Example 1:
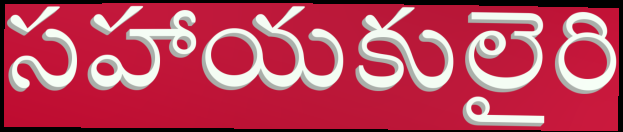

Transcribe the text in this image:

సహాయకులైరి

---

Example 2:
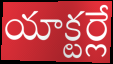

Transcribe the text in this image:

యాక్టర్లే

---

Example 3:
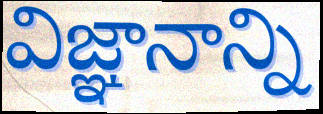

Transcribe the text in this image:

విజ్ఞానాన్ని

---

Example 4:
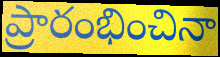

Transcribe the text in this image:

ప్రారంభించినా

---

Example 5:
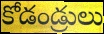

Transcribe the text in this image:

కోడండ్రులు